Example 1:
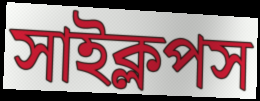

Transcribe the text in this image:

সাইক্লপস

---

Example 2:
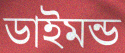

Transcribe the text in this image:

ডাইমন্ড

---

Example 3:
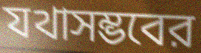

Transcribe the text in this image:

যথাসম্ভবের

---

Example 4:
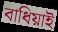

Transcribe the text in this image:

বাধিয়াই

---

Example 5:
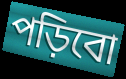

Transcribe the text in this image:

পড়িবো